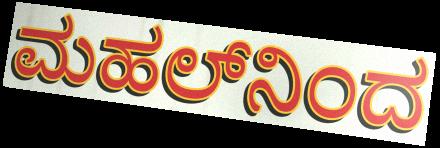
ಮಹಲ್‌ನಿಂದ